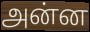
அன்ன